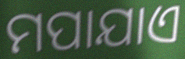
ମପାଯାଏ